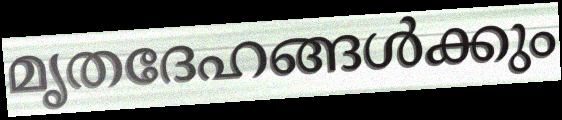
മൃതദേഹങ്ങൾക്കും